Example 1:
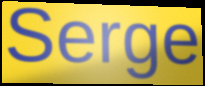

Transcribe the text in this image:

Serge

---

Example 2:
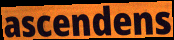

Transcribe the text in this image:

ascendens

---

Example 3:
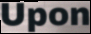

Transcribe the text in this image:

Upon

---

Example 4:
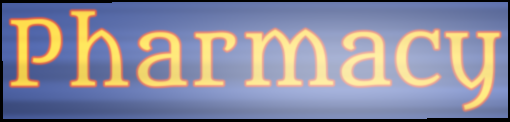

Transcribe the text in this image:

Pharmacy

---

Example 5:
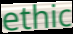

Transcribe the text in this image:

ethic